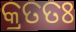
କ୍ରତତଃ